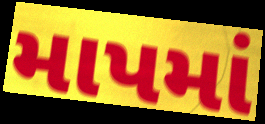
માપમાં